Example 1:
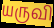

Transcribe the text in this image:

யருவி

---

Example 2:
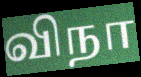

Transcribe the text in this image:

விநா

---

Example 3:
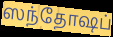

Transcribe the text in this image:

ஸந்தோஷப்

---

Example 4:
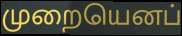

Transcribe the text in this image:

முறையெனப்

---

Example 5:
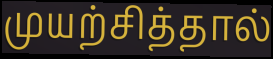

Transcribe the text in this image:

முயற்சித்தால்